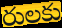
రులకు